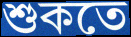
শুকতে